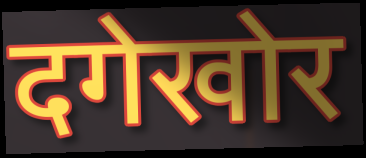
दगेखोर